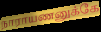
நாராயணனுக்கே